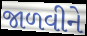
જાળવીને